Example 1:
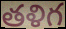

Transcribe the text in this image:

తళిగ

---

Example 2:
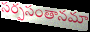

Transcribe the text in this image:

సర్పసంతానమా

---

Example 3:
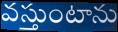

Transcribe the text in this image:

వస్తుంటాను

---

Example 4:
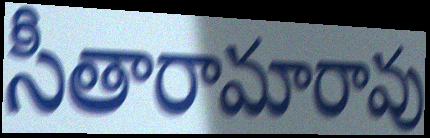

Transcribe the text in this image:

సీతారామారావు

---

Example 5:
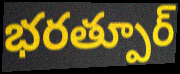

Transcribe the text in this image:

భరత్పూర్